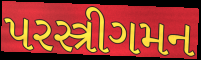
પરસ્ત્રીગમન